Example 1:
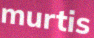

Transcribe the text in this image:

murtis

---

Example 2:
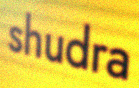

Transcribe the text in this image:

shudra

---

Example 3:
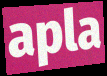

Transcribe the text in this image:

apla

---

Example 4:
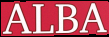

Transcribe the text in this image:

ALBA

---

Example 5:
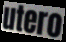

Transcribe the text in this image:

utero